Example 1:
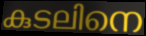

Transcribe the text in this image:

കുടലിനെ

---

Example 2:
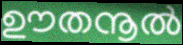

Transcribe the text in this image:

ഊതനൂൽ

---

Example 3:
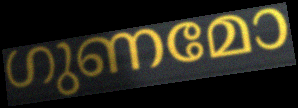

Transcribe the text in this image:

ഗുണമോ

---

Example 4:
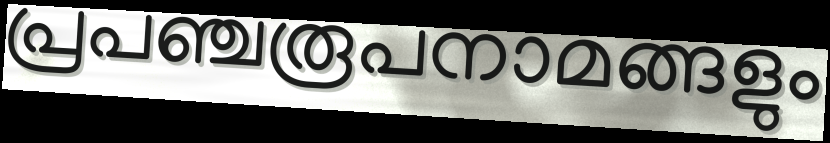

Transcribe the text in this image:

പ്രപഞ്ചരൂപനാമങ്ങളും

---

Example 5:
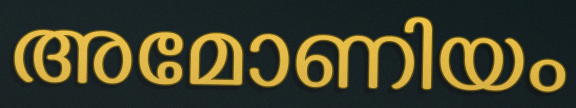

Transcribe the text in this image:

അമോണിയം